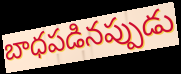
బాధపడినప్పుడు